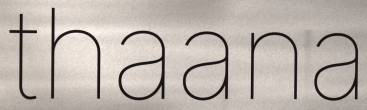
thaana